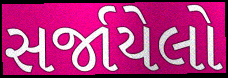
સર્જાયેલો